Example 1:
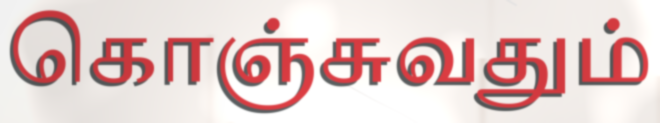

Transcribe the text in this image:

கொஞ்சுவதும்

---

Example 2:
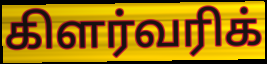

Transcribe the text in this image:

கிளர்வரிக்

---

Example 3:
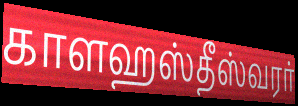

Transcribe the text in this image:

காளஹஸ்தீஸ்வரர்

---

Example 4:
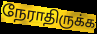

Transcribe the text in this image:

நேராதிருக்க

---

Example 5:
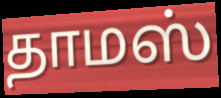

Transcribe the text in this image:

தாமஸ்